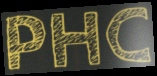
PHC